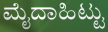
ಮೈದಾಹಿಟ್ಟು